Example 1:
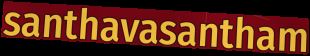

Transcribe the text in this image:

santhavasantham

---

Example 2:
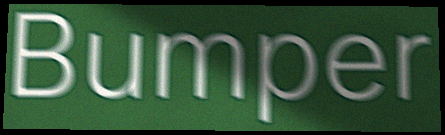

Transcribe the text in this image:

Bumper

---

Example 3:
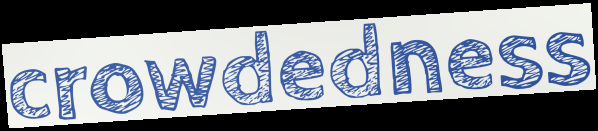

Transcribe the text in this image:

crowdedness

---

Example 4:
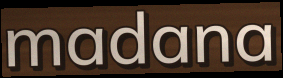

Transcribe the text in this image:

madana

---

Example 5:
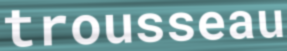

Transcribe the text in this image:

trousseau